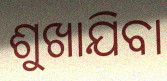
ଶୁଖାଯିବା